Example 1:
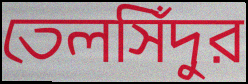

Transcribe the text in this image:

তেলসিঁদুর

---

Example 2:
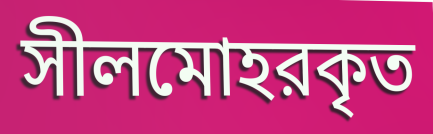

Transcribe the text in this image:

সীলমোহরকৃত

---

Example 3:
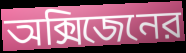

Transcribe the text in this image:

অক্সিজেনের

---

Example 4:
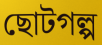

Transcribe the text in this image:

ছোটগল্প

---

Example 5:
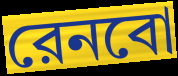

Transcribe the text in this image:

রেনবো